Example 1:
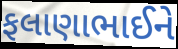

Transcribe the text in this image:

ફલાણાભાઈને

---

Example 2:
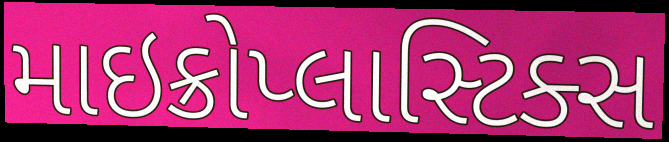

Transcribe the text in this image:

માઇક્રોપ્લાસ્ટિક્સ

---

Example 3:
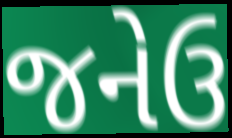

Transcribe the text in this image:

જનેઉ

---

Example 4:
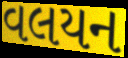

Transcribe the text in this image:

વલયન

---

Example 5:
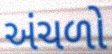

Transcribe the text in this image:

અંચળો